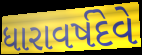
ધારાવર્ષદેવે